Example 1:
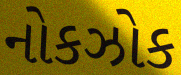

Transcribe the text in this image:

નોકઝોક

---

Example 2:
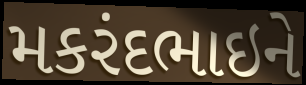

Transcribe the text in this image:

મકરંદભાઇને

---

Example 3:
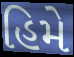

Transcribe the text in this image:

હિમે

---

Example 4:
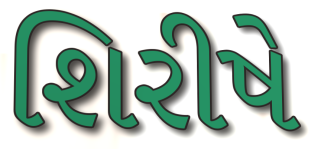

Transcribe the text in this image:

શિરીષે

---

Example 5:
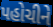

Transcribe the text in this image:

પહોચીને